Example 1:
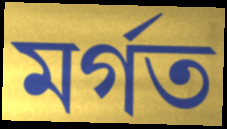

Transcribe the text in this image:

মৰ্গত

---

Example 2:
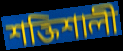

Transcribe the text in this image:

শক্তিশালী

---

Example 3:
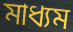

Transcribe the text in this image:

মাধ্যম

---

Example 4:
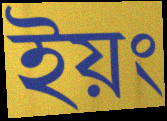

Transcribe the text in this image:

ইয়ং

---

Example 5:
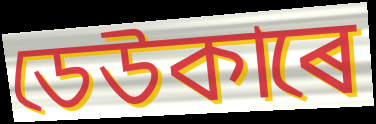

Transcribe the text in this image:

ডেউকাৰে